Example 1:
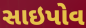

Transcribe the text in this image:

સાઇપોવ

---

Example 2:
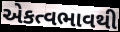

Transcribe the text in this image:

એકત્વભાવથી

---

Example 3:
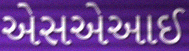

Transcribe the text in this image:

એસએઆઈ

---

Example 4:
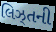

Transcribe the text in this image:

લિઝ્તની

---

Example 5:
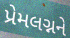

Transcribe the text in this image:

પ્રેમલગ્નને